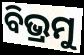
ବିଭ୍ରମୁ